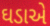
ઘડાએ